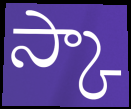
స్కా